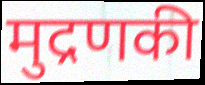
मुद्रणकी